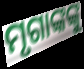
ମୃଗାଙ୍କଙ୍କୁ